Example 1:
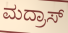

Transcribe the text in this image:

ಮದ್ರಾಸ್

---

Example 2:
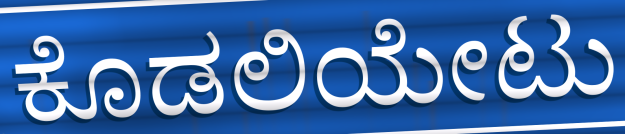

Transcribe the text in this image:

ಕೊಡಲಿಯೇಟು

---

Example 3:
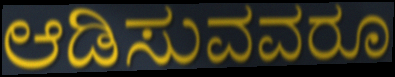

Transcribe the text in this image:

ಆಡಿಸುವವರೂ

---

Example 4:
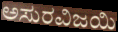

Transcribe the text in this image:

ಅಸುರವಿಜಯಿ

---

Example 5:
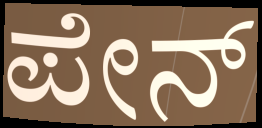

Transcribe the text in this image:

ಪೇನ್